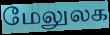
மேலுலக